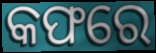
କଫରେ